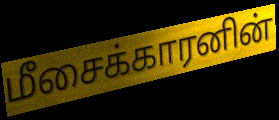
மீசைக்காரனின்